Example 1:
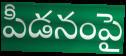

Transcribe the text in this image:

పీడనంపై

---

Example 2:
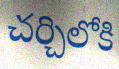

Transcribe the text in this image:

చర్చిలోకి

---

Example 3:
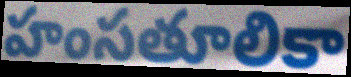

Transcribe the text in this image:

హంసతూలికా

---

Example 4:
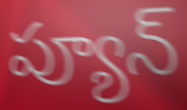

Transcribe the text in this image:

ప్యూన్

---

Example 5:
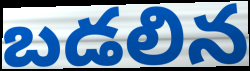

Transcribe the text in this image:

బడలిన